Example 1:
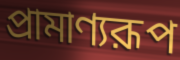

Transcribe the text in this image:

প্রামাণ্যরূপ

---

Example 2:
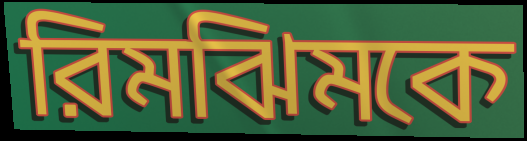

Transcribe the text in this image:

রিমঝিমকে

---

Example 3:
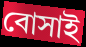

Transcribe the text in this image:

বোসাই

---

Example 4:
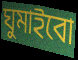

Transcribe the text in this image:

ঘুমাইবো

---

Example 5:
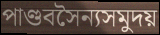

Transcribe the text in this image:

পাণ্ডবসৈন্যসমুদয়